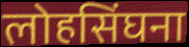
लोहसिंघना